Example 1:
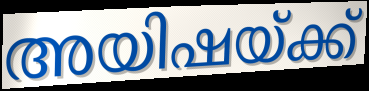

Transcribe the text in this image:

അയിഷയ്ക്ക്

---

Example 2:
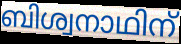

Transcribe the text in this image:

ബിശ്വനാഥിന്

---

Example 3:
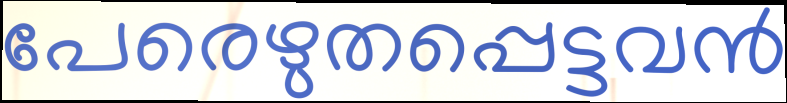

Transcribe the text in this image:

പേരെഴുതപ്പെട്ടവൻ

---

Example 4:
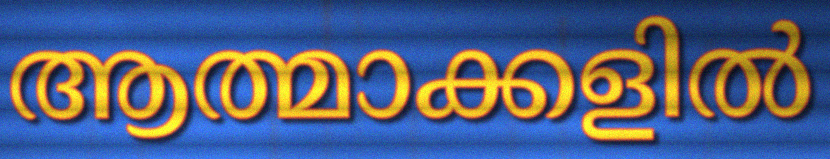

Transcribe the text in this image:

ആത്മാക്കളിൽ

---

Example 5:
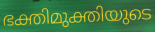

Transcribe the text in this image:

ഭക്തിമുക്തിയുടെ